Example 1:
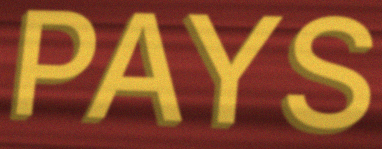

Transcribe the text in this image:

PAYS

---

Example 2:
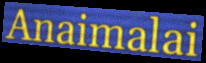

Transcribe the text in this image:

Anaimalai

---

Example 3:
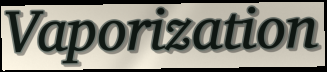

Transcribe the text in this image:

Vaporization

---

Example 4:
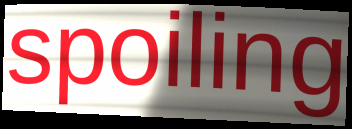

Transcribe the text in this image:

spoiling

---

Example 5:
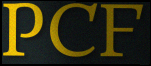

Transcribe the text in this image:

PCF